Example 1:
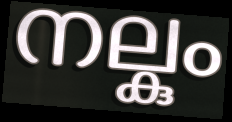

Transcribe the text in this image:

നല്കും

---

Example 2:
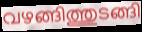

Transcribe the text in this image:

വഴങ്ങിത്തുടങ്ങി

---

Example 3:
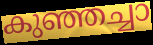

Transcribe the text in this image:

കുഞ്ഞച്ചാ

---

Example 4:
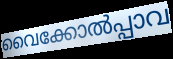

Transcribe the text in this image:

വൈക്കോൽപ്പാവ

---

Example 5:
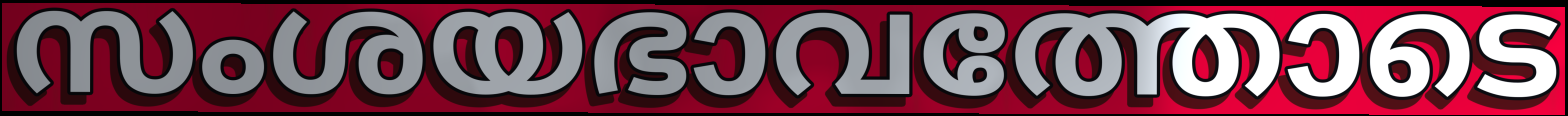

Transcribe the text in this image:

സംശയഭാവത്തോടെ